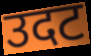
उदट